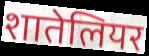
शातेलियर